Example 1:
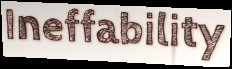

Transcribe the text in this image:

Ineffability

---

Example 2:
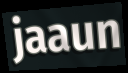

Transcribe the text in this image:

jaaun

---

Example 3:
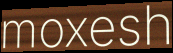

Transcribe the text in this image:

moxesh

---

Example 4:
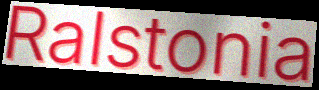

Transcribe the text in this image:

Ralstonia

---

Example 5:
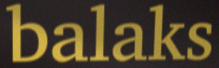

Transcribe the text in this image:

balaks